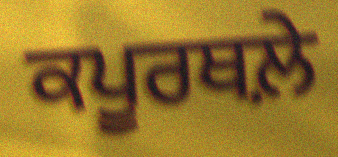
ਕਪੂਰਥਲ਼ੇ